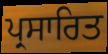
ਪ੍ਰਸਾਰਿਤ